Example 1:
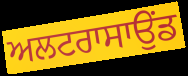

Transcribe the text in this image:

ਅਲਟਰਾਸਾਉਂਡ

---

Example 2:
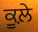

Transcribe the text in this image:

ਕੂਲ਼ੇ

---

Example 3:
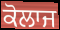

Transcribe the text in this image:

ਕੋਲਾਜ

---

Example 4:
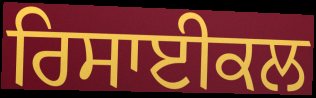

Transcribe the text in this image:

ਰਿਸਾਈਕਲ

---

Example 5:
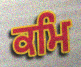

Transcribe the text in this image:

ਕਮਿ